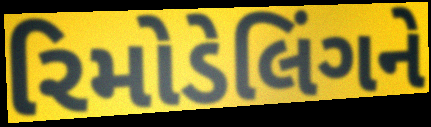
રિમોડેલિંગને